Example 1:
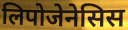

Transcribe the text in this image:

लिपोजेनेसिस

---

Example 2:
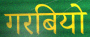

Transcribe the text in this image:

गरबियो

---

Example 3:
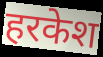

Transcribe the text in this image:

हरकेश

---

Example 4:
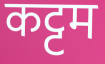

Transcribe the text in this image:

कट्टम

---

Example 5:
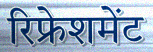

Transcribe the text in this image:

रिफ्रेशमेंट